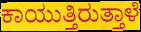
ಕಾಯುತ್ತಿರುತ್ತಾಳೆ